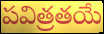
పవిత్రతయే